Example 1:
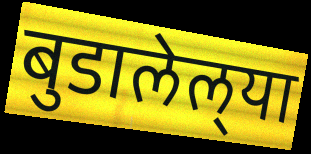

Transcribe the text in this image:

बुडालेल्या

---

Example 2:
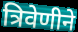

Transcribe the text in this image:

त्रिवेणीने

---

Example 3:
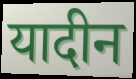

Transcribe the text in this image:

यादीन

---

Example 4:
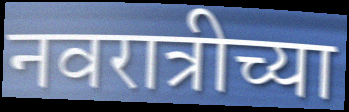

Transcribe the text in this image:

नवरात्रीच्या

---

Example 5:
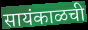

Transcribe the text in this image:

सायंकाळची